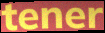
tener